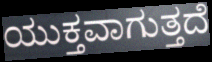
ಯುಕ್ತವಾಗುತ್ತದೆ